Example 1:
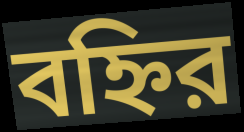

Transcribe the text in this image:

বহ্নির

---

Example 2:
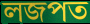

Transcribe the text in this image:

লজপত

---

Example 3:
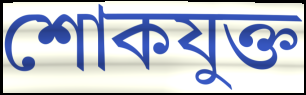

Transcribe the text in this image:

শোকযুক্ত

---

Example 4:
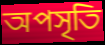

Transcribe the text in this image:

অপসৃতি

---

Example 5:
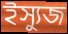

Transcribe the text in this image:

ইস্যুজ